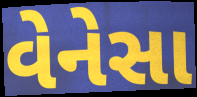
વેનેસા